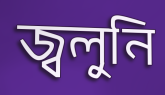
জ্বলুনি